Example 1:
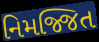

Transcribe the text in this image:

નિમજ્જિત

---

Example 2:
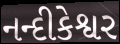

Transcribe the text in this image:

નન્દીકેશ્વર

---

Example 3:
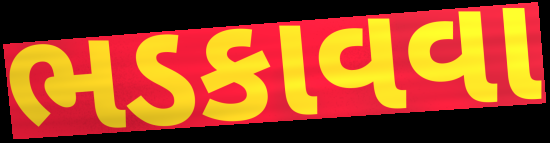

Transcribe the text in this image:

ભડકાવવા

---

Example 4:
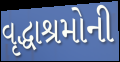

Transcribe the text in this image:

વૃદ્ધાશ્રમોની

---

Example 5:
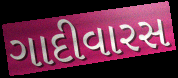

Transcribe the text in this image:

ગાદીવારસ